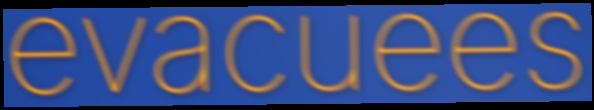
evacuees